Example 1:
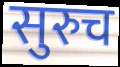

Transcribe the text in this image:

सुरुच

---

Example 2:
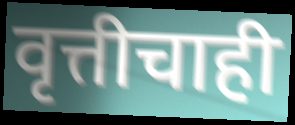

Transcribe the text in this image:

वृत्तीचाही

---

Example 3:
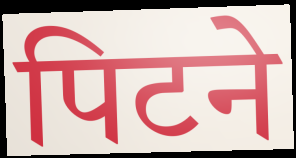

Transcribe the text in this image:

पिटने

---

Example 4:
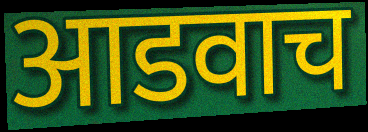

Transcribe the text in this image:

आडवाच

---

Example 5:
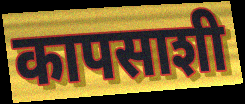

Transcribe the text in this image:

कापसाशी